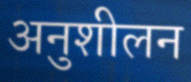
अनुशीलन